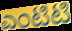
ಎಂಟಿಟಿ